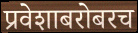
प्रवेशाबरोबरच